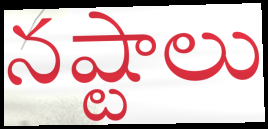
నష్టాలు